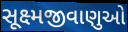
સૂક્ષ્મજીવાણુઓ